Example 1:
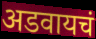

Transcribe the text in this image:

अडवायचं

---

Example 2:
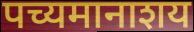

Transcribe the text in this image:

पच्यमानाशय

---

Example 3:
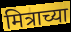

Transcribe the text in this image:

मित्राच्या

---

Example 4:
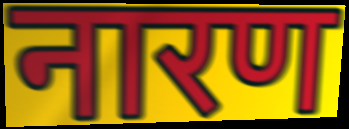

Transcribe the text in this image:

नारण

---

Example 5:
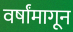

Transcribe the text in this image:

वर्षांमागून